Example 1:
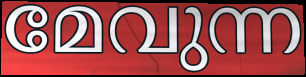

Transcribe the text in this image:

മേവുന്ന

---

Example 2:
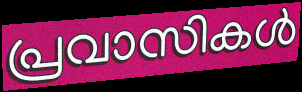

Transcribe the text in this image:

പ്രവാസികൾ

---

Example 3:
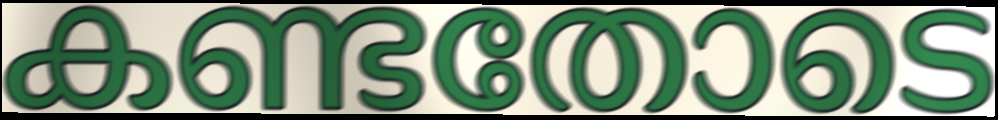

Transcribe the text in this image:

കണ്ടതോടെ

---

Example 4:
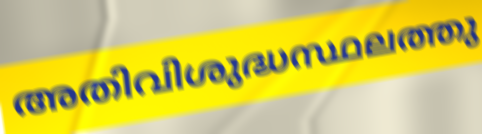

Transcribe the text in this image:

അതിവിശുദ്ധസ്ഥലത്തു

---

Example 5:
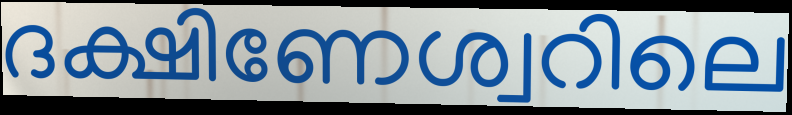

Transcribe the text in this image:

ദക്ഷിണേശ്വറിലെ